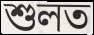
শুলত